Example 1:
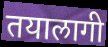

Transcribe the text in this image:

तयालागी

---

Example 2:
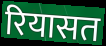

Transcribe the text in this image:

रियासत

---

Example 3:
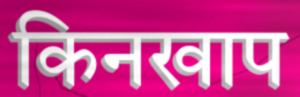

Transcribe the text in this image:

किनखाप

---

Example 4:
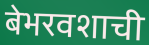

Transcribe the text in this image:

बेभरवशाची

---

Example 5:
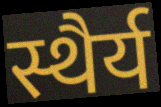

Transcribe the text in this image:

स्थैर्य